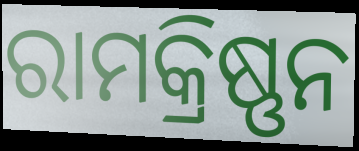
ରାମକ୍ରିଷ୍ଣନ